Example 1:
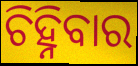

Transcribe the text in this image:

ଚିହ୍ନିବାର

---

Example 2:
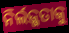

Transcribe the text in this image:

ନିର୍ଲଜ୍ଜତାକୁ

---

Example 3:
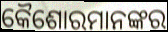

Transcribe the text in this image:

କୈଶୋରମାନଙ୍କର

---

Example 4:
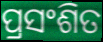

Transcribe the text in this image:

ପ୍ରସଂଶିତ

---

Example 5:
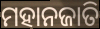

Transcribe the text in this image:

ମହାନଜାତି